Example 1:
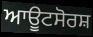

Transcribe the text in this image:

ਆਊਟਸੋਰਸ਼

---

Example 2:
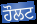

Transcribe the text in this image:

ਹੌਲਟ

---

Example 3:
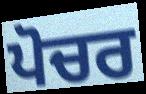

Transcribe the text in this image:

ਪੋਚਰ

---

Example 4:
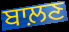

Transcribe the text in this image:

ਬਾਲ਼ਣ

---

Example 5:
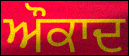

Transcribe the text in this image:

ਔਕਾਦ